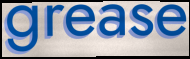
grease